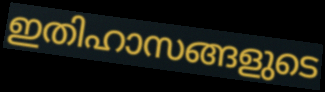
ഇതിഹാസങ്ങളുടെ